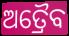
ଅତ୍ରୈବ